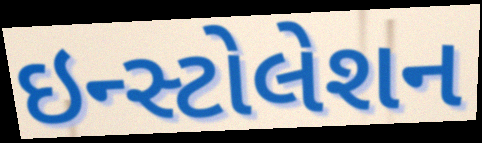
ઇન્સ્ટોલેશન